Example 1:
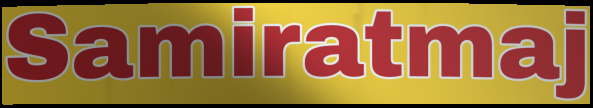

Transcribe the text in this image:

Samiratmaj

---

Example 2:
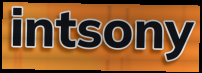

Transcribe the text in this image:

intsony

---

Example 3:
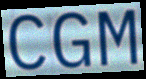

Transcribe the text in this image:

CGM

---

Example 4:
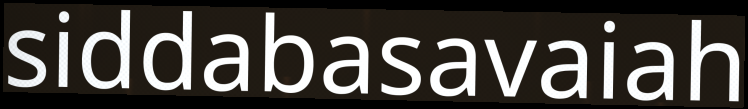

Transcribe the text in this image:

siddabasavaiah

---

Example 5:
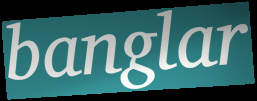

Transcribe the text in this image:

banglar